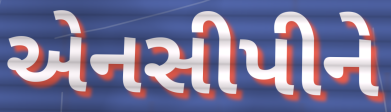
એનસીપીને